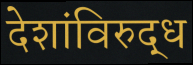
देशांविरुद्ध